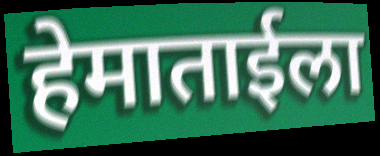
हेमाताईला